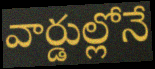
వార్డుల్లోనే